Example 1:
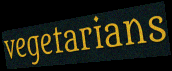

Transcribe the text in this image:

vegetarians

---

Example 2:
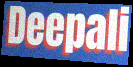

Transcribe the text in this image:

Deepali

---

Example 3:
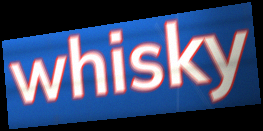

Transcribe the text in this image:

whisky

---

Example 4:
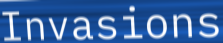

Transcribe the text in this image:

Invasions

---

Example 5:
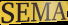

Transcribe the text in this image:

SEMA